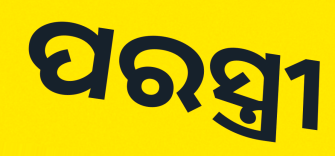
ପରସ୍ତ୍ରୀ